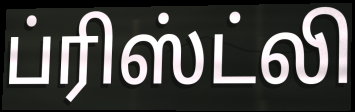
ப்ரிஸ்ட்லி